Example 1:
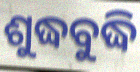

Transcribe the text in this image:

ଶୁଦ୍ଧବୁଦ୍ଧି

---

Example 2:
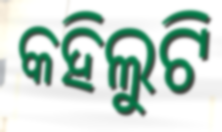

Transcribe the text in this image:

କହିଲୁଟି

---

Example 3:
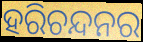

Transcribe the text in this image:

ହରିଚନ୍ଦନର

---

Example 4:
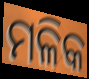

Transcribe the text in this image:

ମଳିକ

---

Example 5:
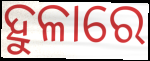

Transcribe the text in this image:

ହୁଳାରେ